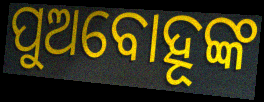
ପୁଅବୋହୂଙ୍କ